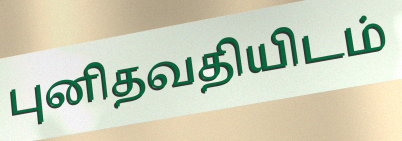
புனிதவதியிடம்